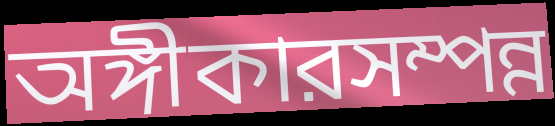
অঙ্গীকারসম্পন্ন